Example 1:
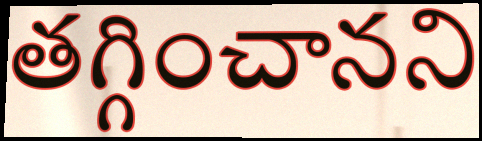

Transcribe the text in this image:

తగ్గించానని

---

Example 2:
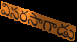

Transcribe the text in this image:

విసరసాగాడు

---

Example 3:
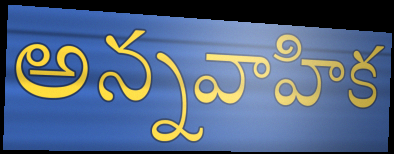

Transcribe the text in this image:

అన్నవాహిక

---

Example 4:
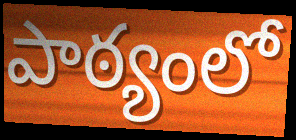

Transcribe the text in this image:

పాఠ్యంలో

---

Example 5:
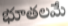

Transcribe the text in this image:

భూతలమే